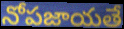
నోపజాయతే